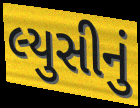
લ્યુસીનું